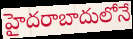
హైదరాబాదులోనే